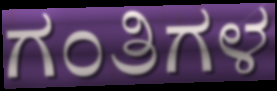
ಗಂತಿಗಳ